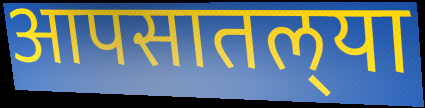
आपसातल्या